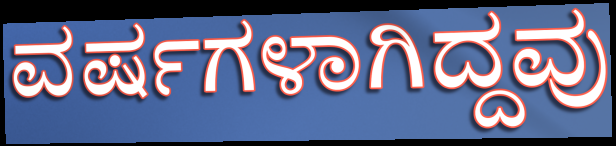
ವರ್ಷಗಳಾಗಿದ್ದವು